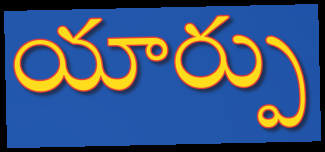
యార్పు